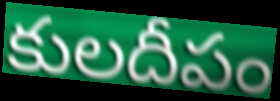
కులదీపం